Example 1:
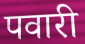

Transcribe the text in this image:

पवारी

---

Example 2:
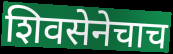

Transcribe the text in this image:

शिवसेनेचाच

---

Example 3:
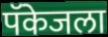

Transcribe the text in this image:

पॅकेजला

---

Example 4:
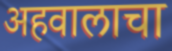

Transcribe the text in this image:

अहवालाचा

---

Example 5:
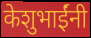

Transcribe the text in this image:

केशुभाईंनी